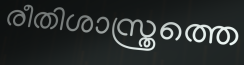
രീതിശാസ്ത്രത്തെ